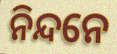
ନିନ୍ଦନେ